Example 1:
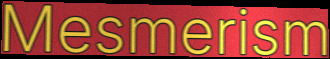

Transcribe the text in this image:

Mesmerism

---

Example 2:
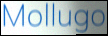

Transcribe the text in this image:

Mollugo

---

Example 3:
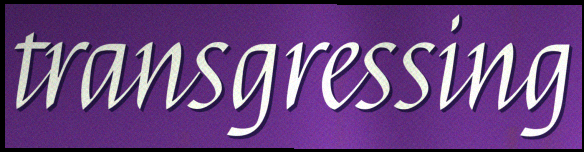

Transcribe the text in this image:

transgressing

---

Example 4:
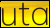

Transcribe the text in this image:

uta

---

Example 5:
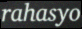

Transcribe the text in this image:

rahasyo